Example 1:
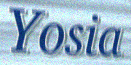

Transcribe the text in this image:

Yosia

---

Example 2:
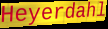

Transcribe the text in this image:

Heyerdahl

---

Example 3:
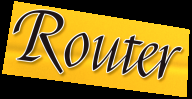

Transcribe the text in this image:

Router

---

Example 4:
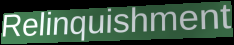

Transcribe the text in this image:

Relinquishment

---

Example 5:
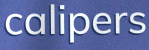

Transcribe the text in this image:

calipers